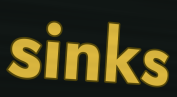
sinks